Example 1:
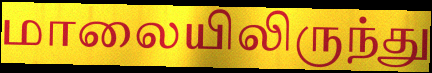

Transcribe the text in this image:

மாலையிலிருந்து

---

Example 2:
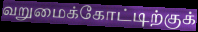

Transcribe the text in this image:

வறுமைக்கோட்டிற்குக்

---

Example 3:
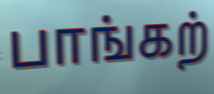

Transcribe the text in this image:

பாங்கற்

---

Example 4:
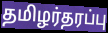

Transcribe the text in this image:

தமிழர்தரப்பு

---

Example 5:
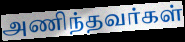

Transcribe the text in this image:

அணிந்தவர்கள்